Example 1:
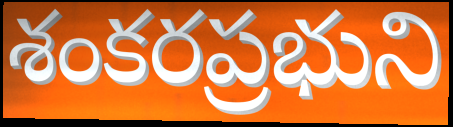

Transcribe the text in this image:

శంకరప్రభుని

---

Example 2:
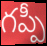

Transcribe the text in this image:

గప్పీ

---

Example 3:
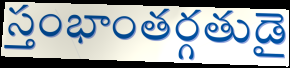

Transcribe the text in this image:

స్తంభాంతర్గతుడై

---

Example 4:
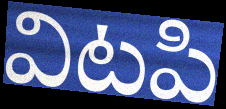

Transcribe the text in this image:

విటపి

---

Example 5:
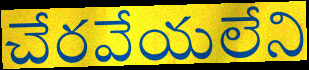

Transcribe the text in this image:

చేరవేయలేని